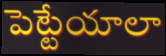
పెట్టేయాలా